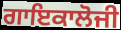
ਗਾਇਕਾਲੋਜੀ